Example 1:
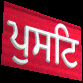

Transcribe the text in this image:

ਪੁਸਟਿ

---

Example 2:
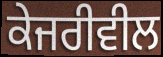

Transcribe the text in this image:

ਕੇਜਰੀਵੀਲ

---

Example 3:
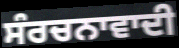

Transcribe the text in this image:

ਸੰਰਚਨਾਵਾਦੀ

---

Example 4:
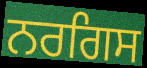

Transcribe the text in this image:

ਨਰਗਿਸ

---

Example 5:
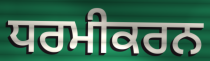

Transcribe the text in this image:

ਧਰਮੀਕਰਨ